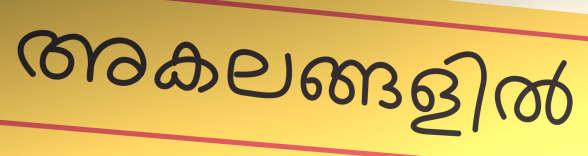
അകലങ്ങളിൽ